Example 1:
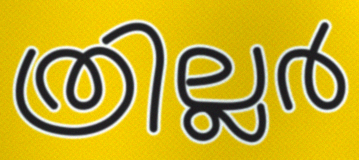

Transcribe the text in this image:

ത്രില്ലർ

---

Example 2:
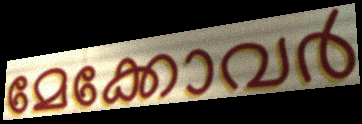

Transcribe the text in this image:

മേക്കോവർ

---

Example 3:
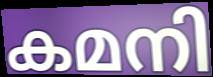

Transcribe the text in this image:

കമനി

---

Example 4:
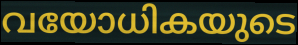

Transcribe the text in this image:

വയോധികയുടെ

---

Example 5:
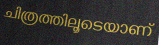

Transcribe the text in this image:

ചിത്രത്തിലൂടെയാണ്